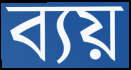
ব্যয়